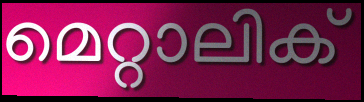
മെറ്റാലിക്